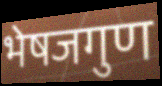
भेषजगुण